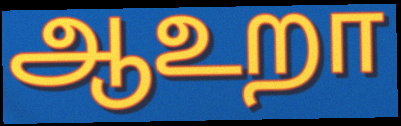
ஆஉறா